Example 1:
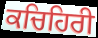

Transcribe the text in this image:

ਕਚਿਹਿਰੀ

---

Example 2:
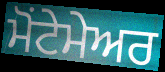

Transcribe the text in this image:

ਮੋਂਟੇਮੇਅਰ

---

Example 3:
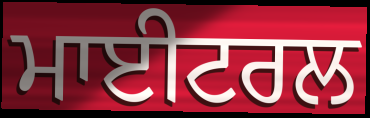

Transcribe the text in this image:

ਮਾਈਟਰਲ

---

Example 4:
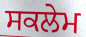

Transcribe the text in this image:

ਸਕਲੇਮ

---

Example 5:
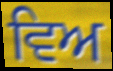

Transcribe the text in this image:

ਵਿਅ